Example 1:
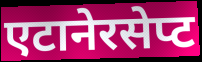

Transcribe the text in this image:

एटानेरसेप्ट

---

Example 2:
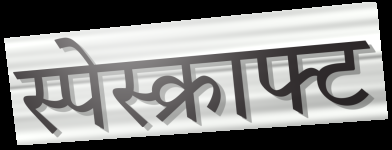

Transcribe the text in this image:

स्पेस्क्राफ्ट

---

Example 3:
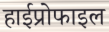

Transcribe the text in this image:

हाईप्रोफाइल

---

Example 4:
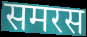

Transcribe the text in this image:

समरस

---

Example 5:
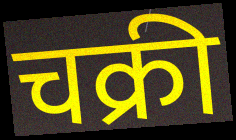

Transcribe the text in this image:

चक्री